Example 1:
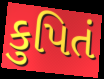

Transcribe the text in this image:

કુપિતં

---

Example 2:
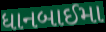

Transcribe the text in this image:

ધાનબાઈમા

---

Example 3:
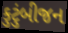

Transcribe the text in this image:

કુટુંબીજન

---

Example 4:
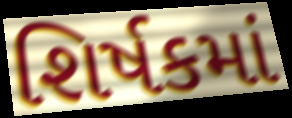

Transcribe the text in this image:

શિર્ષકમાં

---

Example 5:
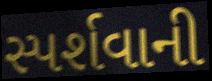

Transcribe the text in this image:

સ્પર્શવાની